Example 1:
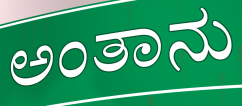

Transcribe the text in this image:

ಅಂತಾನು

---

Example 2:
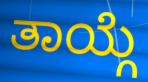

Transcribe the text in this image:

ತಾಯ್ಗೆ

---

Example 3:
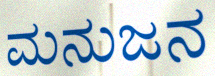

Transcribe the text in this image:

ಮನುಜನ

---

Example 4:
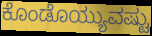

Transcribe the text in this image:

ಕೊಂಡೊಯ್ಯುವಷ್ಟು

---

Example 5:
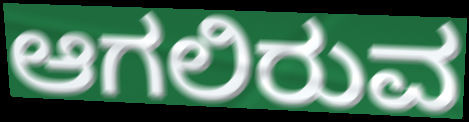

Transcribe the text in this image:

ಆಗಲಿರುವ